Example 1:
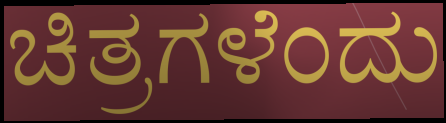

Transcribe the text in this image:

ಚಿತ್ರಗಳೆಂದು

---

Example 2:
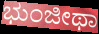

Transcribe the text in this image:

ಭುಂಜೀಥಾ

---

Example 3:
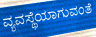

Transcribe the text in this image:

ವ್ಯವಸ್ಥೆಯಾಗುವಂತೆ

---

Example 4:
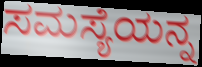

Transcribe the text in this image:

ಸಮಸ್ಯೆಯನ್ನ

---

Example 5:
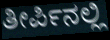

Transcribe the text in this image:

ತೀರ್ಪಿನಲ್ಲಿ